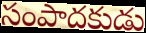
సంపాదకుడు